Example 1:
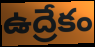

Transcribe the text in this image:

ఉద్రేకం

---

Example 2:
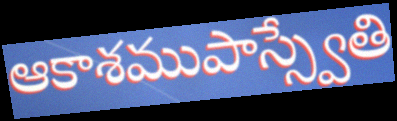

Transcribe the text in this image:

ఆకాశముపాస్స్వేతి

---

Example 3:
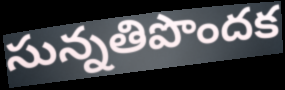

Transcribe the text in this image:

సున్నతిపొందక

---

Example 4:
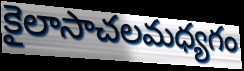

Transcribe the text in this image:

కైలాసాచలమధ్యగం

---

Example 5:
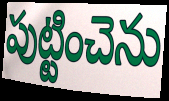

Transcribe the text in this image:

పుట్టించెను